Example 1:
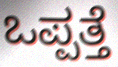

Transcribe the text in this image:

ಒಪ್ಪತ್ತೆ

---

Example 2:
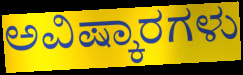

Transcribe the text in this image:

ಅವಿಷ್ಕಾರಗಳು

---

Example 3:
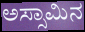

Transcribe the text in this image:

ಅಸ್ಸಾಮಿನ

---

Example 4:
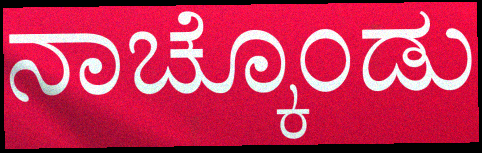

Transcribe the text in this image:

ನಾಚ್ಕೊಂಡು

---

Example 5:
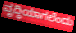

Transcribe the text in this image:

ವೃದ್ಧಿಯಾಗಲೆಂದು